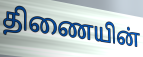
திணையின்